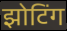
झोटिंग